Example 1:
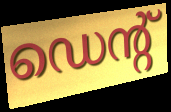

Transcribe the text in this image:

ഡെന്റ്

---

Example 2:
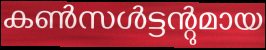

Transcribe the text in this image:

കൺസൾട്ടന്റുമായ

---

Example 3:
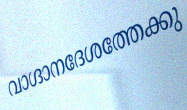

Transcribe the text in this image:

വാഗ്ദാനദേശത്തേക്കു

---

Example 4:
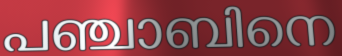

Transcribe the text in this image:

പഞ്ചാബിനെ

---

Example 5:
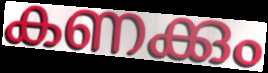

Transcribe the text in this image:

കണക്കും